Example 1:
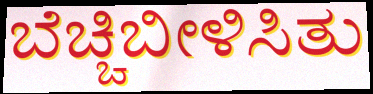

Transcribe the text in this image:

ಬೆಚ್ಚಿಬೀಳಿಸಿತು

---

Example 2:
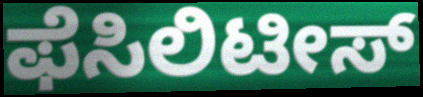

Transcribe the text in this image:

ಫೆಸಿಲಿಟೀಸ್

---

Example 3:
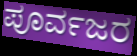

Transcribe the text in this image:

ಪೂರ್ವಜರ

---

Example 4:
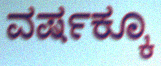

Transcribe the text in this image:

ವರ್ಷಕ್ಕೂ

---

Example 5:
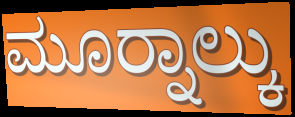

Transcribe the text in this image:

ಮೂರ‍್ನಾಲ್ಕು